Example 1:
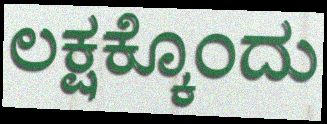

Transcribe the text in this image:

ಲಕ್ಷಕ್ಕೊಂದು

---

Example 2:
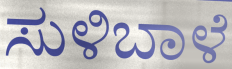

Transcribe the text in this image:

ಸುಳಿಬಾಳೆ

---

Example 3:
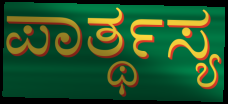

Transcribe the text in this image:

ಪಾರ್ತ್ಥಸ್ಯ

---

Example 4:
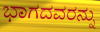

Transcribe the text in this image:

ಭಾಗದವರನ್ನು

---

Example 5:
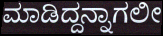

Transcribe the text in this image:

ಮಾಡಿದ್ದನ್ನಾಗಲೀ